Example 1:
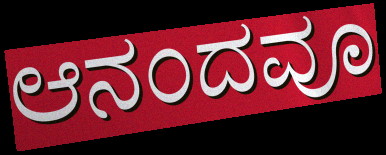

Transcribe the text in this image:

ಆನಂದವೂ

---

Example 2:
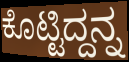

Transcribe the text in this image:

ಕೊಟ್ಟಿದ್ದನ್ನ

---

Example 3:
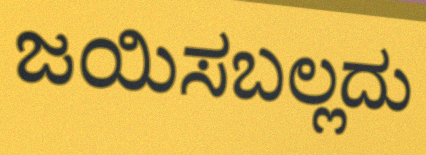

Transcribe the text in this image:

ಜಯಿಸಬಲ್ಲದು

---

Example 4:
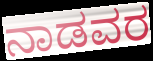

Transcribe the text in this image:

ನಾಡವರ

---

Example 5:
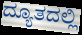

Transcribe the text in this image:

ದ್ಯೂತದಲ್ಲಿ